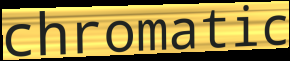
chromatic